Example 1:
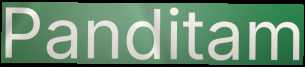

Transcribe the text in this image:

Panditam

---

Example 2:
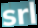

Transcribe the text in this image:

srl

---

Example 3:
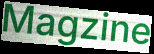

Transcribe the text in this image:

Magzine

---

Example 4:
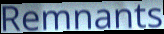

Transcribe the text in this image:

Remnants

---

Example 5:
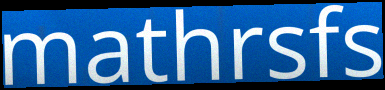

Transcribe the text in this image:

mathrsfs